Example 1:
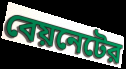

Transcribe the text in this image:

বেয়নেটের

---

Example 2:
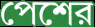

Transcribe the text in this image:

পেশের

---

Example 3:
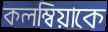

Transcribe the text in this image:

কলম্বিয়াকে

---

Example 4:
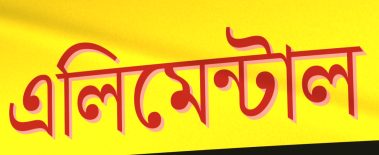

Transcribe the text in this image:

এলিমেন্টাল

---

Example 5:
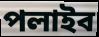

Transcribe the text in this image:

পলাইব